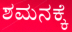
ಶಮನಕ್ಕೆ